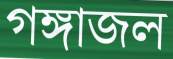
গঙ্গাজল